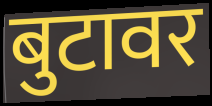
बुटावर